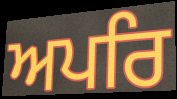
ਅਪਰਿ